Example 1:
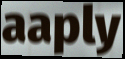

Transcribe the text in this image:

aaply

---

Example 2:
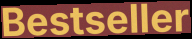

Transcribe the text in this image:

Bestseller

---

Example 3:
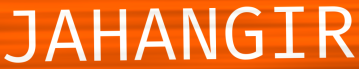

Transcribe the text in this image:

JAHANGIR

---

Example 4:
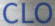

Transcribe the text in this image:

CLO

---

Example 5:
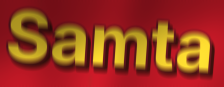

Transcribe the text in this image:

Samta